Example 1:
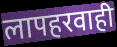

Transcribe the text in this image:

लापहरवाही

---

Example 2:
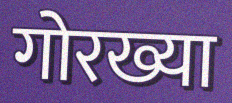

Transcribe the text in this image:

गोरख्या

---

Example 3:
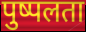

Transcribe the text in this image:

पुष्पलता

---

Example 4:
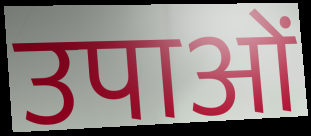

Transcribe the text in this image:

उपाओं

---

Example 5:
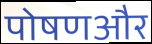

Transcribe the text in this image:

पोषणऔर